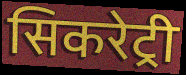
सिकरेट्री